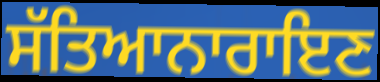
ਸੱਤਿਆਨਾਰਾਇਣ